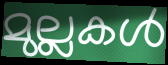
മുല്ലകൾ